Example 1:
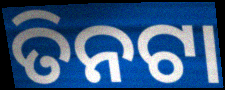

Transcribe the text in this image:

ତିନଟା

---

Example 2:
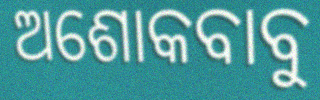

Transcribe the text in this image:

ଅଶୋକବାବୁ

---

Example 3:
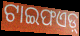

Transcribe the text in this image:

ଟାଇଫଏଡ଼୍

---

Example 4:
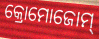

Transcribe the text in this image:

କ୍ରୋମୋଜୋମ୍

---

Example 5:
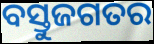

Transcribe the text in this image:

ବସ୍ତୁଜଗତର